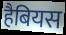
हैबियस